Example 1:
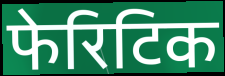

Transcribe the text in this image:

फेरिटिक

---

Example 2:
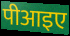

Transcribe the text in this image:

पीआइए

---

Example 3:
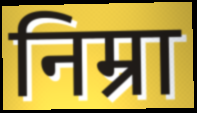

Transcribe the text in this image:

निम्रा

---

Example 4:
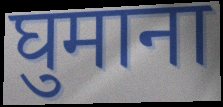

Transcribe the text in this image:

घुमाना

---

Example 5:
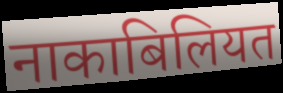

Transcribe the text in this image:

नाकाबिलियत